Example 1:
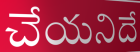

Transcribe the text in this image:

చేయనిదే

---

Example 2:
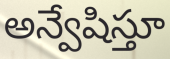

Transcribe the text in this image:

అన్వేషిస్తూ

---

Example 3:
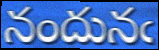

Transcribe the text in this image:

నందునఁ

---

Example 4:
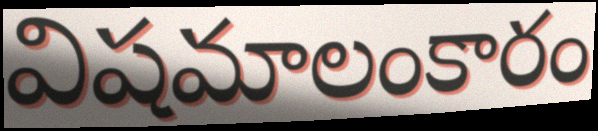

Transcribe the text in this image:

విషమాలంకారం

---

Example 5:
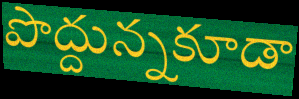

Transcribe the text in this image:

పొద్దున్నకూడా